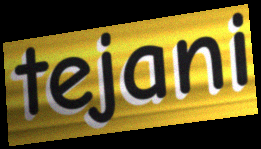
tejani